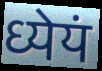
ध्येयं